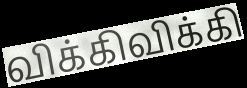
விக்கிவிக்கி